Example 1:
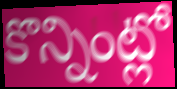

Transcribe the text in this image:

కొన్నింట్లో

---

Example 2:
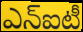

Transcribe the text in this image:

ఎన్ఐటీ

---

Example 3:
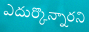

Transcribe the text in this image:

ఎదుర్కొన్నారని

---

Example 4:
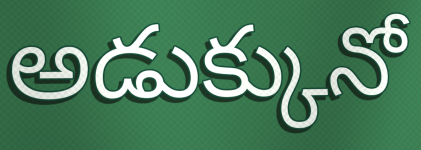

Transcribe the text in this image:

అడుక్కునో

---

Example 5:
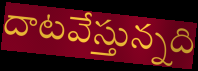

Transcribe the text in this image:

దాటవేస్తున్నది